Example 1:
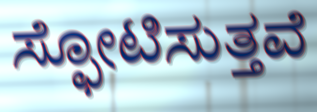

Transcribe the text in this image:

ಸ್ಫೋಟಿಸುತ್ತವೆ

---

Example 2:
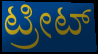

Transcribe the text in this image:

ಟ್ರೀಟ್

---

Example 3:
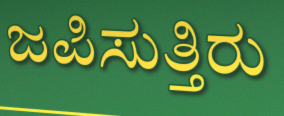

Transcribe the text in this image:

ಜಪಿಸುತ್ತಿರು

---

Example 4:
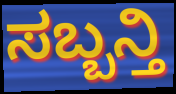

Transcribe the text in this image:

ಸಬ್ಬನ್ತಿ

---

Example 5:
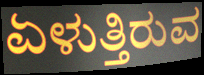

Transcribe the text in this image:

ಏಳುತ್ತಿರುವ